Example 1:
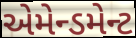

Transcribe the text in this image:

એમેન્ડમેન્ટ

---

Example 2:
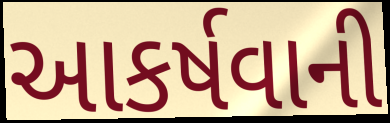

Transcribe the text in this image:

આકર્ષવાની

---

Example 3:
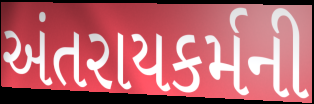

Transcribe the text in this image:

અંતરાયકર્મની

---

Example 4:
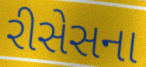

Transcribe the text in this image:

રીસેસના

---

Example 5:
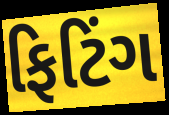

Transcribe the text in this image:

ફિટિંગ